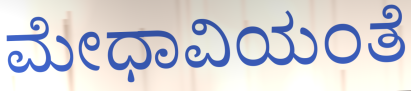
ಮೇಧಾವಿಯಂತೆ